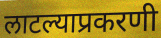
लाटल्याप्रकरणी